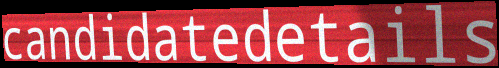
candidatedetails